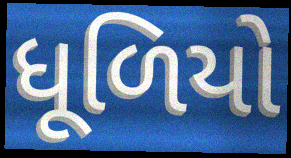
ધૂળિયો